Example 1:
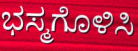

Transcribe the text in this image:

ಭಸ್ಮಗೊಳಿಸಿ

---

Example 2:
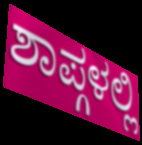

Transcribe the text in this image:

ಶಾಪ್ಗಳಲ್ಲಿ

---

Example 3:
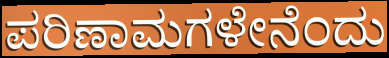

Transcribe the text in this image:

ಪರಿಣಾಮಗಳೇನೆಂದು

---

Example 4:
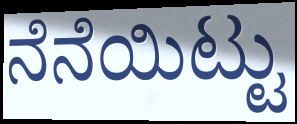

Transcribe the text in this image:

ನೆನೆಯಿಟ್ಟು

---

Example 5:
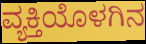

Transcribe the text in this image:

ವ್ಯಕ್ತಿಯೊಳಗಿನ